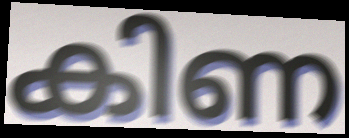
കിണ